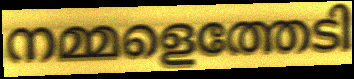
നമ്മളെത്തേടി